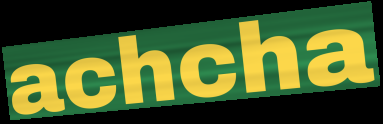
achcha